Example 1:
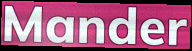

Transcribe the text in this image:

Mander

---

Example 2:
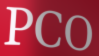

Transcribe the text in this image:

PCO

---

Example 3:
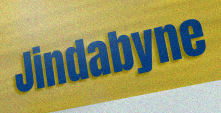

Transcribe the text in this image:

Jindabyne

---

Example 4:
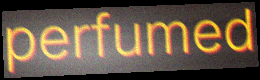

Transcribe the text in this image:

perfumed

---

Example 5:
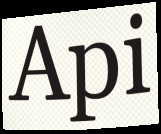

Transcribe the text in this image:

Api